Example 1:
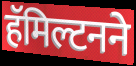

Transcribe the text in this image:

हॅमिल्टनने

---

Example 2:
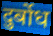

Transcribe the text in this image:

दुर्बोध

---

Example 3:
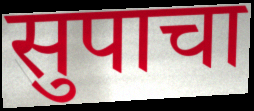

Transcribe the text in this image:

सुपाचा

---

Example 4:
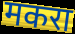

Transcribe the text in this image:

मकरा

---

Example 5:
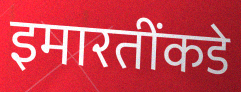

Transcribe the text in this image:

इमारतींकडे